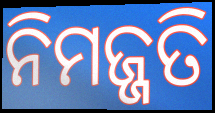
ନିମଜ୍ଜତି